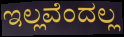
ಇಲ್ಲವೆಂದಲ್ಲ